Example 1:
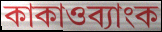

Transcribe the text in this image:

কাকাওব্যাংক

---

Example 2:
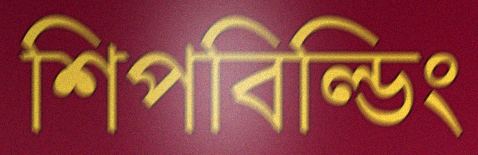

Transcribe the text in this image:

শিপবিল্ডিং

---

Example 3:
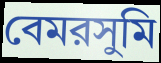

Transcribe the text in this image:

বেমরসুমি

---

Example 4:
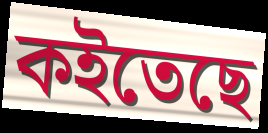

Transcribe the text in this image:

কইতেছে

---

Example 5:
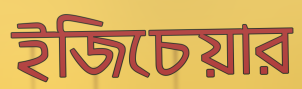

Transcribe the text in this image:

ইজিচেয়ার